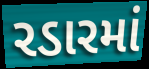
રડારમાં